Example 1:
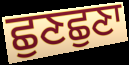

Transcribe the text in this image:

ਛੁਣਛੁਣਾ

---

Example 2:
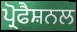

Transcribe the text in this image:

ਪ੍ਰੋਫੈਸ਼ਨਲ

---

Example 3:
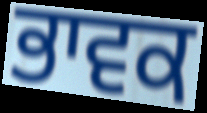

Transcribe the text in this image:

ਭਾਵਕ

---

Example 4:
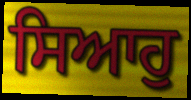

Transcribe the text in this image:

ਸਿਆਹੁ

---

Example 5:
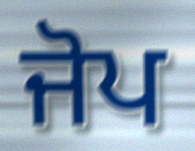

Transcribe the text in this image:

ਜੋਪ